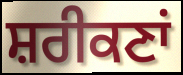
ਸ਼ਰੀਕਣਾਂ